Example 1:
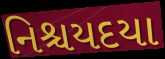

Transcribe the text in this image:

નિશ્ચયદયા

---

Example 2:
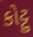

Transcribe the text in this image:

કોટ્ટુ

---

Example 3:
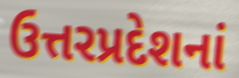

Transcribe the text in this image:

ઉત્તરપ્રદેશનાં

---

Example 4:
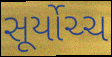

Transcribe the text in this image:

સૂર્યોચ્ચ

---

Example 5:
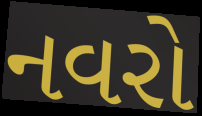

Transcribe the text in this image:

નવરો